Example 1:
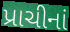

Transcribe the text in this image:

પ્રાચીનાં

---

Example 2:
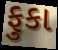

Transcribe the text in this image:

ફુકા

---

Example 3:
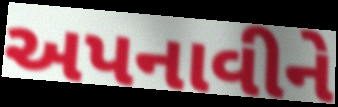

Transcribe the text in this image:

અપનાવીને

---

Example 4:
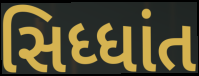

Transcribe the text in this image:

સિધ્ધાંત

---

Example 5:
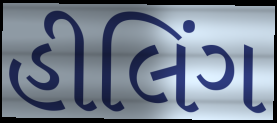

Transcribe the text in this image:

હીલિંગ